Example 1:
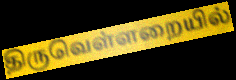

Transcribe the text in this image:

திருவெள்ளறையில்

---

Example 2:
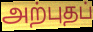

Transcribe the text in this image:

அற்புதப்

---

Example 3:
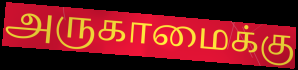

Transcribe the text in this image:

அருகாமைக்கு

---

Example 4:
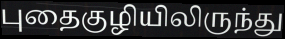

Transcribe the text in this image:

புதைகுழியிலிருந்து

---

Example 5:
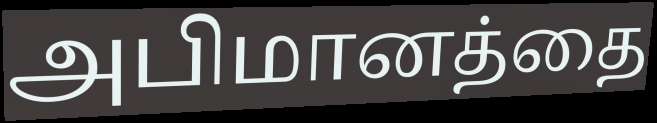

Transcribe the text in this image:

அபிமானத்தை